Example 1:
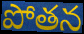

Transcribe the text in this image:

పోతన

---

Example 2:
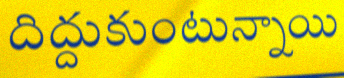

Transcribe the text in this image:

దిద్దుకుంటున్నాయి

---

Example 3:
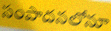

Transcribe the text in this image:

సంపాదనలోనూ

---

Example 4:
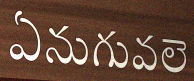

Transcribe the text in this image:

ఏనుగువలె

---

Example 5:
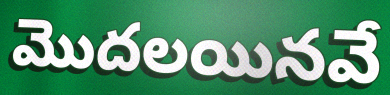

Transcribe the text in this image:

మొదలయినవే